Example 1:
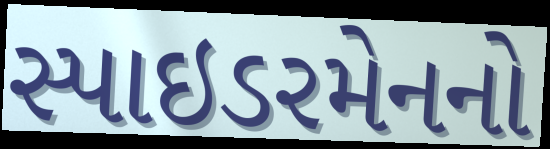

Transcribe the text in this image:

સ્પાઇડરમેનનો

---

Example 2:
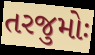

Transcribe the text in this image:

તરજુમોઃ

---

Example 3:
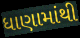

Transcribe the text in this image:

ધાણામાંથી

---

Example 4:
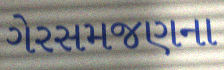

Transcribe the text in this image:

ગેરસમજણના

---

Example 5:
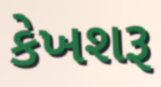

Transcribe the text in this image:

કેખશરૂ